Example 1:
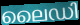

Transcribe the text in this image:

ലൈഡി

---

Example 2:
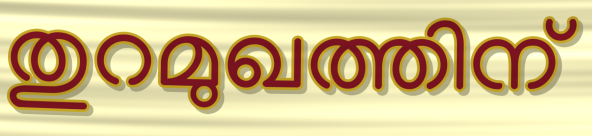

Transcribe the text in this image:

തുറമുഖത്തിന്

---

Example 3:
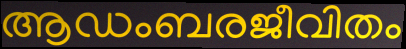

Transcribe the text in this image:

ആഡംബരജീവിതം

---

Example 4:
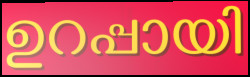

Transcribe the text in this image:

ഉറപ്പായി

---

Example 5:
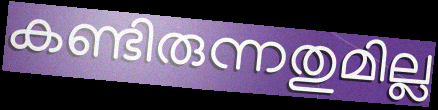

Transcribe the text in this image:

കണ്ടിരുന്നതുമില്ല